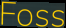
Foss